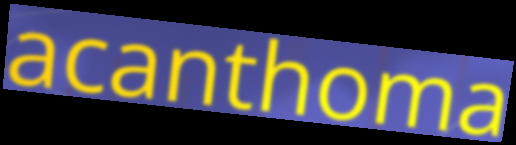
acanthoma